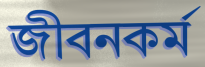
জীবনকর্ম